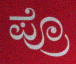
ಪ್ರೊ